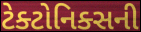
ટેક્ટોનિક્સની